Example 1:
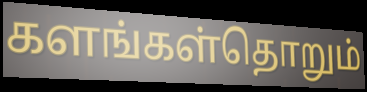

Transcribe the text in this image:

களங்கள்தொறும்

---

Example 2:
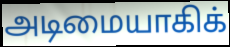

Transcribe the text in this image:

அடிமையாகிக்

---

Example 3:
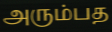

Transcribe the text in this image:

அரும்பத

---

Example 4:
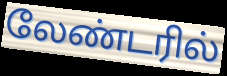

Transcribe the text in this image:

லேண்டரில்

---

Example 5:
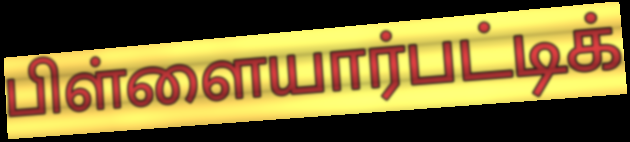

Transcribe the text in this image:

பிள்ளையார்பட்டிக்